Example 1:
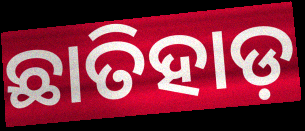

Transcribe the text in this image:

ଛାତିହାଡ଼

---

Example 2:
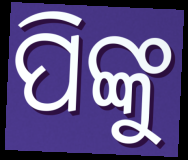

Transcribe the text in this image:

ପିଙ୍କୁ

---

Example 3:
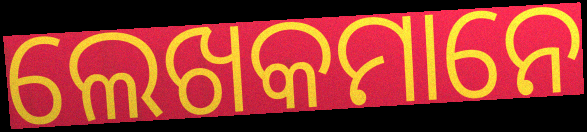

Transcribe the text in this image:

ଲେଖକମାନେ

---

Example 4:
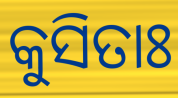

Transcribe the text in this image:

କୁସିତାଃ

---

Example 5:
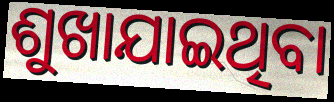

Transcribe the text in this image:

ଶୁଖାଯାଇଥିବା